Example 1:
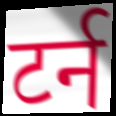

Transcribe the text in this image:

टर्न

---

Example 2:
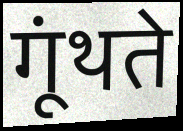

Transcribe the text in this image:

गूंथते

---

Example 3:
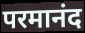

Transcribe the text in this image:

परमानंद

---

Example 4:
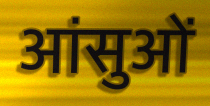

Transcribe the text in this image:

आंसुओं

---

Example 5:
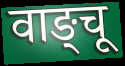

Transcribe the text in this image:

वाङ्चू